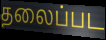
தலைப்பட